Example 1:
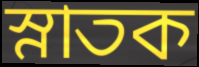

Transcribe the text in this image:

স্নাতক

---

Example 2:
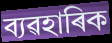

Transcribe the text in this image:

ব্যৱহাৰিক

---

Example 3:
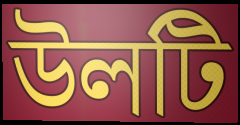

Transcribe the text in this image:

উলটি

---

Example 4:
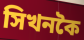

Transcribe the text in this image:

সিখনকৈ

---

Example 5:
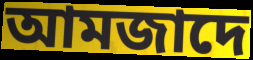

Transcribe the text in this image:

আমজাদে